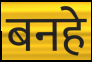
बनहे